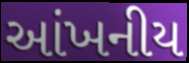
આંખનીય